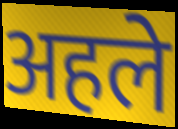
अहले